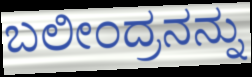
ಬಲೀಂದ್ರನನ್ನು